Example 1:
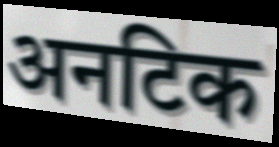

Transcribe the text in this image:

अनटिक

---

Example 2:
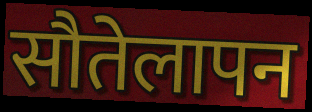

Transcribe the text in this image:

सौतेलापन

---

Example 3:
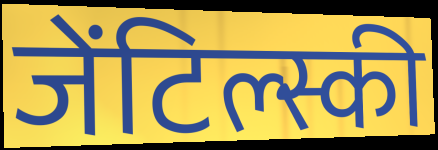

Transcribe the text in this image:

जेंटिल्स्की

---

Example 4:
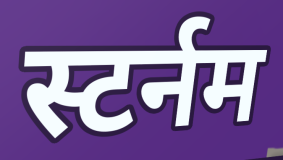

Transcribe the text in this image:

स्टर्नम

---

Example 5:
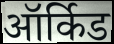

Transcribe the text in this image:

ऑर्किड